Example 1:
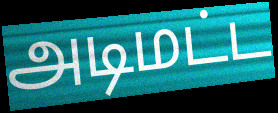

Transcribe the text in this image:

அடிமட்ட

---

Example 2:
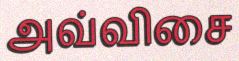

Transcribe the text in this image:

அவ்விசை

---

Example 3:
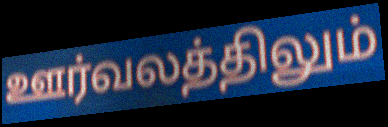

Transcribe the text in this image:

ஊர்வலத்திலும்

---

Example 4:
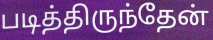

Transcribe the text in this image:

படித்திருந்தேன்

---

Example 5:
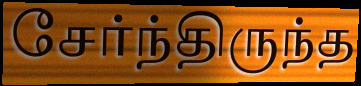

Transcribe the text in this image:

சேர்ந்திருந்த